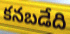
కనబడేది